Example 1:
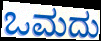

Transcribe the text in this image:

ಒಮದು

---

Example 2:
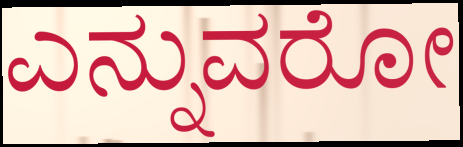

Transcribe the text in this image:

ಎನ್ನುವರೋ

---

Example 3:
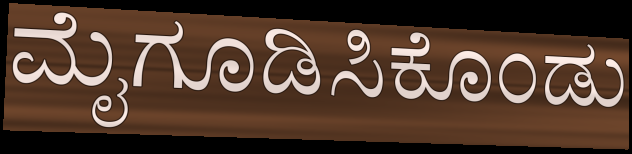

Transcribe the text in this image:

ಮೈಗೂಡಿಸಿಕೊಂಡು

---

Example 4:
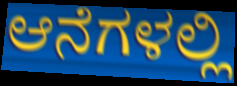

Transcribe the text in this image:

ಆನೆಗಳಲ್ಲಿ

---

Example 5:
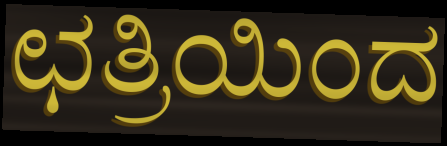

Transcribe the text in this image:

ಛತ್ರಿಯಿಂದ